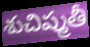
శుచిష్మతీ